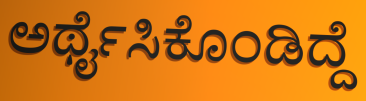
ಅರ್ಥೈಸಿಕೊಂಡಿದ್ದೆ